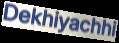
Dekhiyachhi